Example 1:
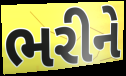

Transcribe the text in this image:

ભરીને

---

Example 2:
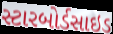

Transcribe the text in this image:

સ્ટારબોર્ડસાઇડ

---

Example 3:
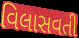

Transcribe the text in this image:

વિલાસવતી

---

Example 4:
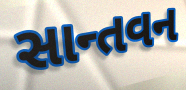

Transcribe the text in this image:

સાન્તવન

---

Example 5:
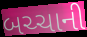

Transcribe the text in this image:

બચ્ચાની